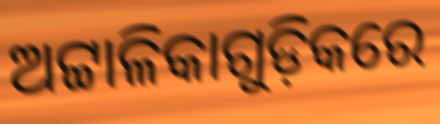
ଅଟ୍ଟାଳିକାଗୁଡ଼ିକରେ